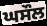
ਘਸੌਲ